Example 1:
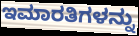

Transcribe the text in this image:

ಇಮಾರತಿಗಳನ್ನು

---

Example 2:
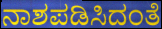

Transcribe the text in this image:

ನಾಶಪಡಿಸಿದಂತೆ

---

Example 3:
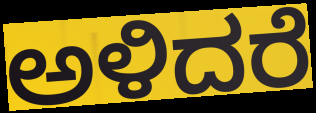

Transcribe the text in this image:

ಅಳಿದರೆ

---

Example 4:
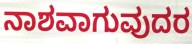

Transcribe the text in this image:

ನಾಶವಾಗುವುದರ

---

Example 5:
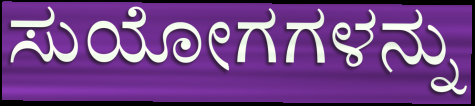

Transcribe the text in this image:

ಸುಯೋಗಗಳನ್ನು